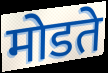
मोडते